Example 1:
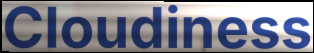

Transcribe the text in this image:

Cloudiness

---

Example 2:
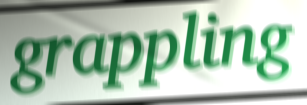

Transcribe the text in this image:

grappling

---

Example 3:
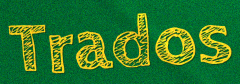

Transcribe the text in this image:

Trados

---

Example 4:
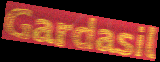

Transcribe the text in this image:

Gardasil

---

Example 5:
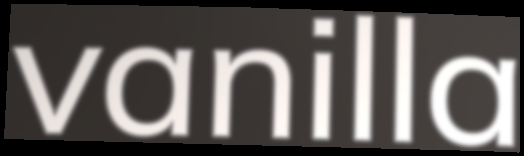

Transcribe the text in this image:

vanilla